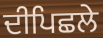
ਦੀਪਿਛਲੇ